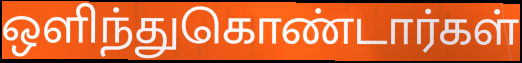
ஒளிந்துகொண்டார்கள்